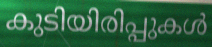
കുടിയിരിപ്പുകൾ